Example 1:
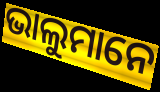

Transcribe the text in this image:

ଭାଲୁମାନେ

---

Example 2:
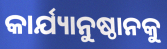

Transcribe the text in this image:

କାର୍ଯ୍ୟାନୁଷ୍ଠାନକୁ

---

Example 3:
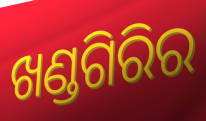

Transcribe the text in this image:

ଖଣ୍ଡଗିରିର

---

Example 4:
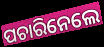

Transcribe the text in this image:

ପଚାରିନେଲେ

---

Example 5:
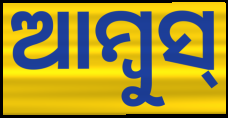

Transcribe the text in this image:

ଆମ୍ବୁସ୍